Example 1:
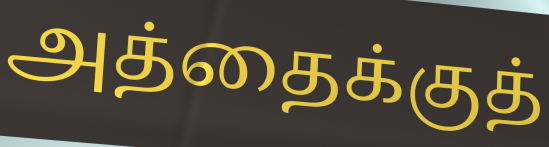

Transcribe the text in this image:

அத்தைக்குத்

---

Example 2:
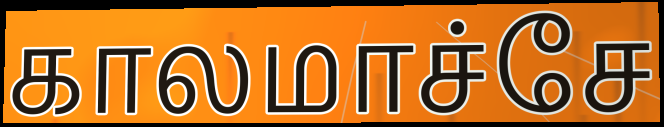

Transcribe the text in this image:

காலமாச்சே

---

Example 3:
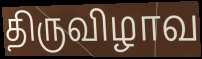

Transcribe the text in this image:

திருவிழாவ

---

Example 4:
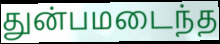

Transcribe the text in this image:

துன்பமடைந்த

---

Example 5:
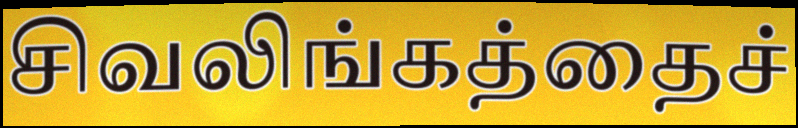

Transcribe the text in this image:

சிவலிங்கத்தைச்